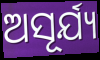
ଅସୂର୍ଯ୍ୟ